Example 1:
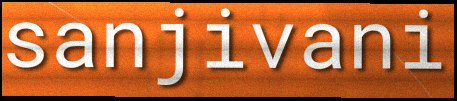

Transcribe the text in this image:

sanjivani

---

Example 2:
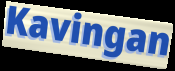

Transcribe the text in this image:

Kavingan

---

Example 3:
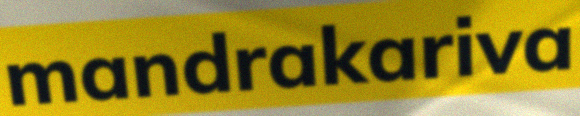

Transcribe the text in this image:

mandrakariva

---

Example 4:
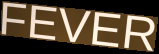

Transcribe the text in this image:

FEVER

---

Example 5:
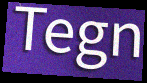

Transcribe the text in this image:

Tegn